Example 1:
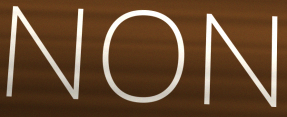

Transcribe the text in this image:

NON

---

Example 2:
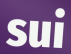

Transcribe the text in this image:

sui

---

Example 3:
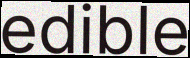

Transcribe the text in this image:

edible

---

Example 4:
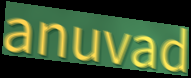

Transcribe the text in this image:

anuvad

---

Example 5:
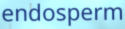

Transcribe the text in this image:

endosperm